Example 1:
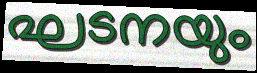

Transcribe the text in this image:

ഘടനയും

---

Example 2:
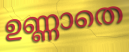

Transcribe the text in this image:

ഉണ്ണാതെ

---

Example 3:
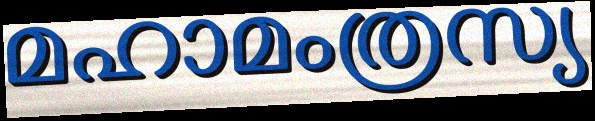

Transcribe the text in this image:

മഹാമംത്രസ്യ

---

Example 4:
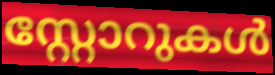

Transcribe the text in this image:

സ്റ്റോറുകൾ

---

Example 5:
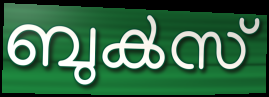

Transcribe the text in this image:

ബുൿസ്